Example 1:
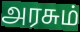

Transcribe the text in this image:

அரசும்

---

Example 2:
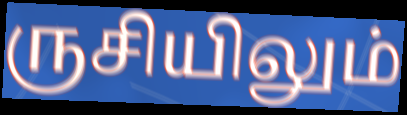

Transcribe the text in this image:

ருசியிலும்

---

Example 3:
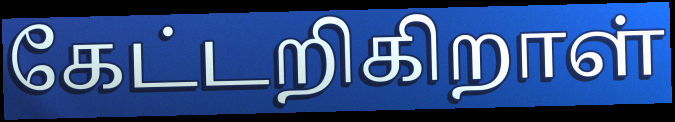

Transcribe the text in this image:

கேட்டறிகிறாள்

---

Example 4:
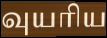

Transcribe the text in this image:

வுயரிய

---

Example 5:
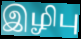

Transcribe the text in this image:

இழிபு